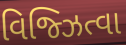
વિજ્ઝિત્વા